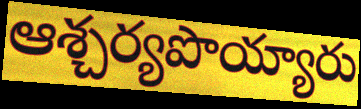
ఆశ్చర్యపొయ్యారు